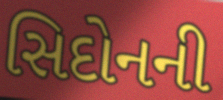
સિદોનની